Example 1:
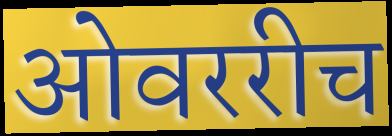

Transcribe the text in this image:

ओवररीच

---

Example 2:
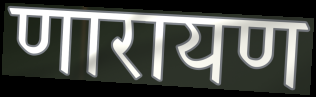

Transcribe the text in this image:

णारायण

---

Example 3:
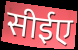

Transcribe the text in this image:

सीईए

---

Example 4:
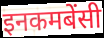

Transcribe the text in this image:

इनकमबेंसी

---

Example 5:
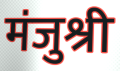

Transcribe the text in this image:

मंजुश्री